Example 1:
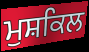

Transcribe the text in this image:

ਮੁਸ਼ਕਿਲ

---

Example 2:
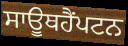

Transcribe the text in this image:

ਸਾਊਥਹੈਂਪਟਨ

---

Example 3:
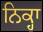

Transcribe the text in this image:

ਨਿਕ੍ਹਾ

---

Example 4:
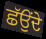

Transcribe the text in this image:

ਛੱਉਂਦੇ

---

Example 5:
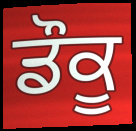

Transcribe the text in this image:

ਡੌਕੂ